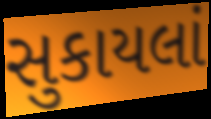
સુકાયલાં